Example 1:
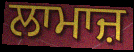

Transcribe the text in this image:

ਲਾਮਾਜ਼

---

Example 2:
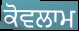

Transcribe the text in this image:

ਕੋਵਲਾਮ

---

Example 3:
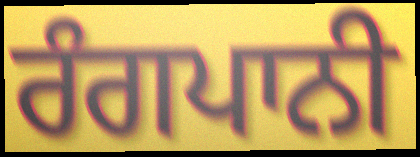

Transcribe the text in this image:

ਰੰਗਪਾਨੀ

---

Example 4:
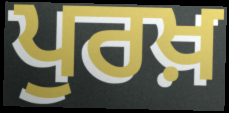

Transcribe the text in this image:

ਪੁਰਖ਼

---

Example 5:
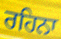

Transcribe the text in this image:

ਰਹਿਨਾ